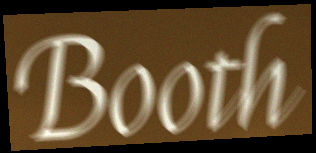
Booth